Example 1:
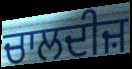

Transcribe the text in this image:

ਚਾਲਦੀਜ਼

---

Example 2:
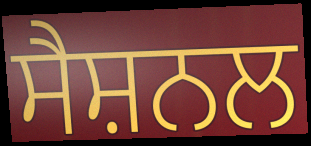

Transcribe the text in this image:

ਸੈਸ਼ਨਲ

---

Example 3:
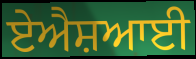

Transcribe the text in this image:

ਏਐਸ਼ਆਈ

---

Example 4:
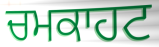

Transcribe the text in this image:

ਚਮਕਾਹਟ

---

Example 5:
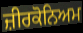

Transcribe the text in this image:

ਜ਼ੀਰਕੋਨਿਅਮ